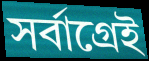
সর্বাগ্রেই